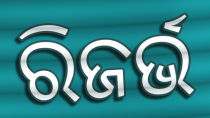
ରିଜର୍ଭ